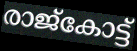
രാജ്കോട്ട്